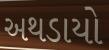
અથડાયો